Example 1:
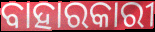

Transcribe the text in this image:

ବାହାରକାରୀ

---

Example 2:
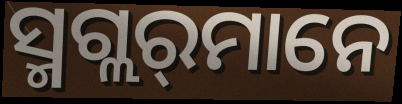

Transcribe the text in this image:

ସ୍ମଗ୍ଲର୍‌ମାନେ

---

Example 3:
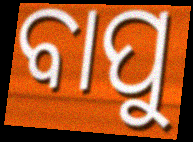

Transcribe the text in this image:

ବାପୁ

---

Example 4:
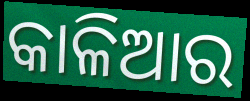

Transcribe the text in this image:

କାଳିଆର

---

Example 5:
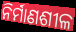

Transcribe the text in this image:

ନିର୍ମାଣଶୀଳ